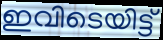
ഇവിടെയിട്ട്